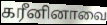
கரீனினாவை